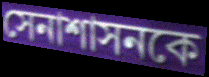
সেনাশাসনকে